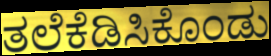
ತಲೆಕೆಡಿಸಿಕೊಂಡು